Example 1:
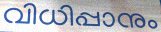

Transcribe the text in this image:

വിധിപ്പാനും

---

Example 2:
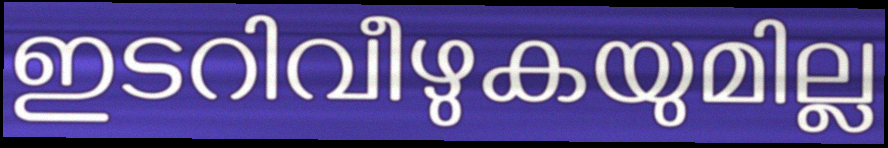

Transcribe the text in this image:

ഇടറിവീഴുകയുമില്ല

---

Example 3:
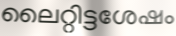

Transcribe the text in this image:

ലൈറ്റിട്ടശേഷം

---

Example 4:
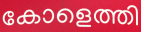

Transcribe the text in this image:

കോളെത്തി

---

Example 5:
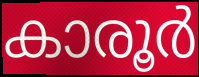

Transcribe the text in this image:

കാരൂർ